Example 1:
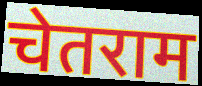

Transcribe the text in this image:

चेतराम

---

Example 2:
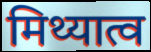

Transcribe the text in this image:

मिथ्‍यात्‍व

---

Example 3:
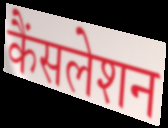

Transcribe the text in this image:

कैंसलेशन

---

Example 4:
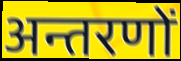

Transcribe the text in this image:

अन्तरणों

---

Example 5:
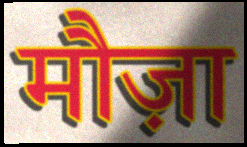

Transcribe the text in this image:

मौज़ा